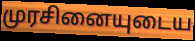
முரசினையுடைய